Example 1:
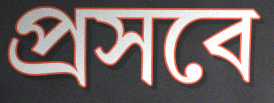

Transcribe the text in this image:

প্রসবে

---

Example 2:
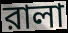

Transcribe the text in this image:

রালা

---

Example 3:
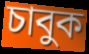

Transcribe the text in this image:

চাবুক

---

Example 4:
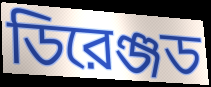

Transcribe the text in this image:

ডিরেঞ্জড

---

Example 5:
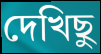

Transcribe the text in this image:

দেখিছু